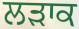
ਲੜਾਕ